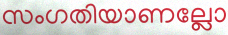
സംഗതിയാണല്ലോ